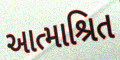
આત્માશ્રિત